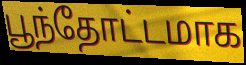
பூந்தோட்டமாக